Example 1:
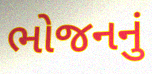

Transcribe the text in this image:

ભોજનનું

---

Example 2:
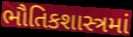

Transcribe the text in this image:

ભૌતિકશાસ્ત્રમાં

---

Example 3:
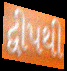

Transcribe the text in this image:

દ્વીપથી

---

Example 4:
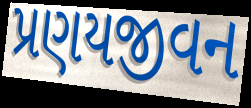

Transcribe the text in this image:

પ્રણયજીવન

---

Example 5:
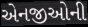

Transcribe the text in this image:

એનજીઓની